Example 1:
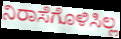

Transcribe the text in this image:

ನಿರಾಸೆಗೊಳಿಸಿಲ್ಲ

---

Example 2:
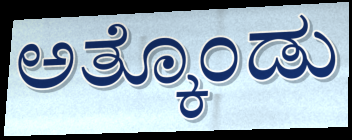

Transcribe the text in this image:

ಅತ್ಕೊಂಡು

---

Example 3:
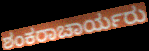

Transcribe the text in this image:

ಶಂಕರಾಚಾರ್ಯರು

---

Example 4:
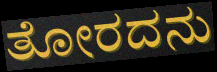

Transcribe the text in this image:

ತೋರದನು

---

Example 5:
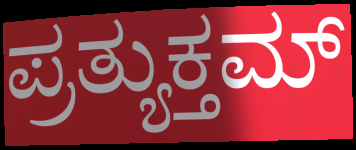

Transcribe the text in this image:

ಪ್ರತ್ಯುಕ್ತಮ್